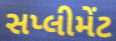
સપ્લીમેંટ